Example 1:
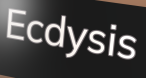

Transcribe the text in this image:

Ecdysis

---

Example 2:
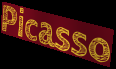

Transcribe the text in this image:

Picasso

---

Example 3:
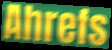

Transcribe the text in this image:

Ahrefs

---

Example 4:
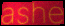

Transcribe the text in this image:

ashe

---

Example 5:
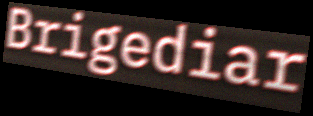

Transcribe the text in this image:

Brigediar